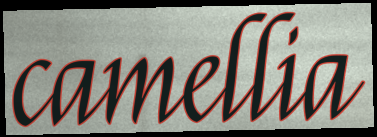
camellia